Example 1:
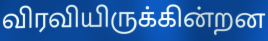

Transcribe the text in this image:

விரவியிருக்கின்றன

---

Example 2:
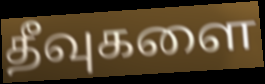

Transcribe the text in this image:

தீவுகளை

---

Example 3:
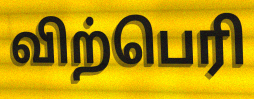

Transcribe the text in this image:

விற்பெரி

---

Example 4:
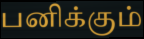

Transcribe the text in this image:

பனிக்கும்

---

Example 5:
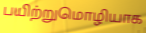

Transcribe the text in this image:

பயிற்றுமொழியாக